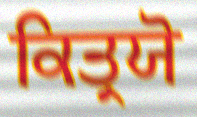
ਕਿਤ੍ਰਯੋ